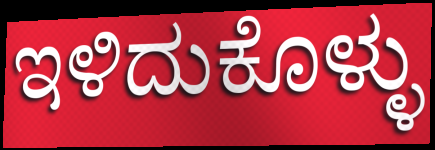
ಇಳಿದುಕೊಳ್ಳು